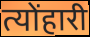
त्योंहारी